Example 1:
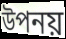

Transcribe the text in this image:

উপনয়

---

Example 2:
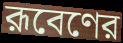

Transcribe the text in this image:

রূবেণের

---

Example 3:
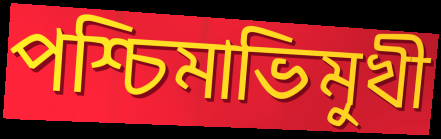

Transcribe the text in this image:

পশ্চিমাভিমুখী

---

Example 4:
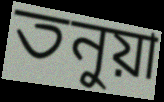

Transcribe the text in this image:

তনুয়া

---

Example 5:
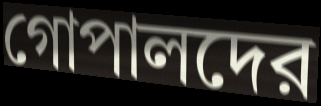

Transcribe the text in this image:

গোপালদের